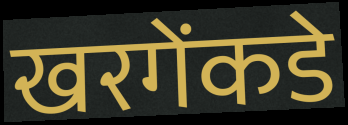
खरगेंकडे